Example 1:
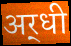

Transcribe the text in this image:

अर्धी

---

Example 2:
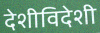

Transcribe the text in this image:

देशीविदेशी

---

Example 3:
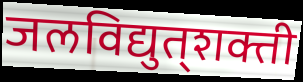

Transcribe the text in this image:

जलविद्युत्‌शक्ती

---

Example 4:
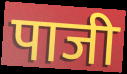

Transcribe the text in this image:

पाजी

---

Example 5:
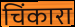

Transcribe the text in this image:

चिंकारा